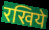
रखिये